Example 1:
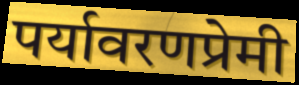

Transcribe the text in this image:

पर्यावरणप्रेमी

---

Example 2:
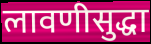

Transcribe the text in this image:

लावणीसुद्धा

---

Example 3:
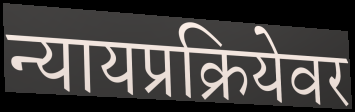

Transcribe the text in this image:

न्यायप्रक्रियेवर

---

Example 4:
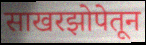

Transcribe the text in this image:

साखरझोपेतून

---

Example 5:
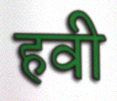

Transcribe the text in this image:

हवी